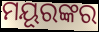
ମୟୂରଙ୍କର